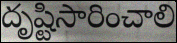
దృష్టిసారించాలి